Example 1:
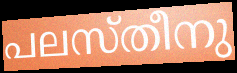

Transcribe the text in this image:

പലസ്തീനു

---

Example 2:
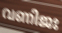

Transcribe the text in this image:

വണിജഃ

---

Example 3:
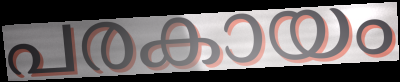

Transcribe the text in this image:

പരകായം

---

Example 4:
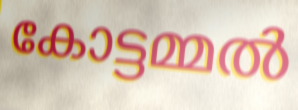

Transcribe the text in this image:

കോട്ടമ്മൽ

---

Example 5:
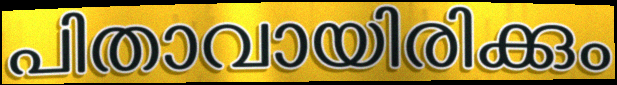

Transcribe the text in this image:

പിതാവായിരിക്കും